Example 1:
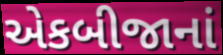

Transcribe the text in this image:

એકબીજાનાં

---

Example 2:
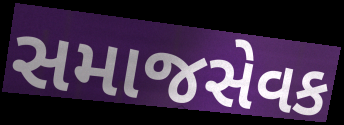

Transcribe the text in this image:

સમાજસેવક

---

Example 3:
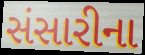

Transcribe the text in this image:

સંસારીના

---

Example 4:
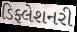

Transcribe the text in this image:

ડિફ્લેશનરી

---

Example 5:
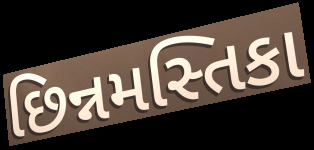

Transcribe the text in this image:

છિન્નમસ્તિકા